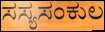
ಸಸ್ಯಸಂಕುಲ